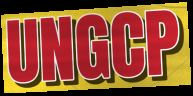
UNGCP